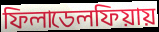
ফিলাডেলফিয়ায়